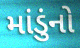
માંડુંનો